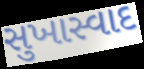
સુખાસ્વાદ